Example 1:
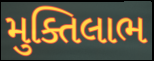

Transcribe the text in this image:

મુક્તિલાભ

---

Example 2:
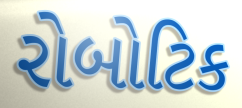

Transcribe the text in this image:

રોબોટિક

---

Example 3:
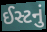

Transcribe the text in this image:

ઈસ્ટનું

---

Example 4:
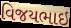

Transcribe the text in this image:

વિજયભાઇ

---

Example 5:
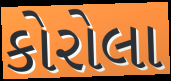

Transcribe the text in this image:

કોરોલા